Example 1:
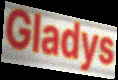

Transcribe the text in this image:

Gladys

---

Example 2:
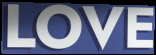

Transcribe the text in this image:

LOVE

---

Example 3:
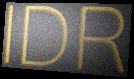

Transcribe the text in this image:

IDR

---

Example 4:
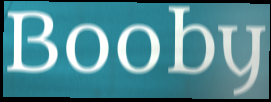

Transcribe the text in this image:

Booby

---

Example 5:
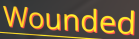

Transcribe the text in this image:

Wounded